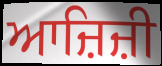
ਆਜ਼ਿਜ਼ੀ